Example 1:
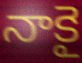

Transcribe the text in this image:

నాకై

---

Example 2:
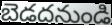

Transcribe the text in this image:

బెడదనుండి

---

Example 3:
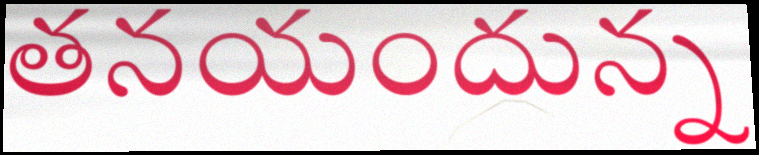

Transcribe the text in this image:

తనయందున్న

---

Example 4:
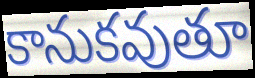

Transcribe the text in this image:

కానుకవుతూ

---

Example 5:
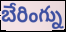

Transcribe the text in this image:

బేరింగ్ను